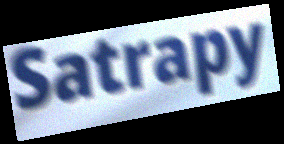
Satrapy